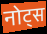
नोट्स